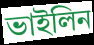
ভাইলিন